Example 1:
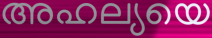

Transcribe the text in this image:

അഹല്യയെ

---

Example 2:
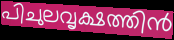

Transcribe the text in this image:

പിചുലവൃക്ഷത്തിൻ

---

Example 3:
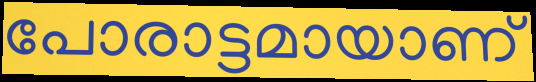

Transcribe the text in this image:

പോരാട്ടമായാണ്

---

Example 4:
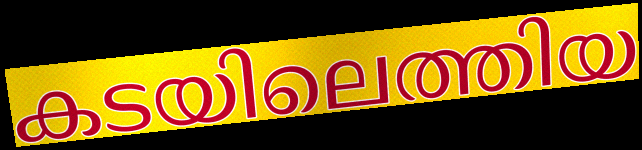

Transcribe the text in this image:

കടയിലെത്തിയ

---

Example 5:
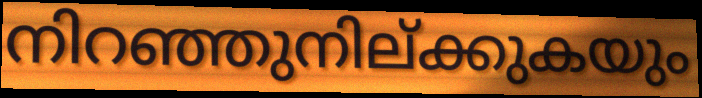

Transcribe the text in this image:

നിറഞ്ഞുനില്ക്കുകയും